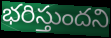
భరిస్తుందని